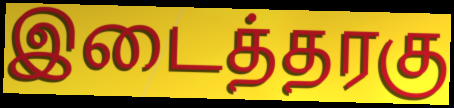
இடைத்தரகு